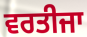
ਵਰਤੀਜਾ